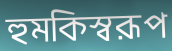
হুমকিস্বরূপ